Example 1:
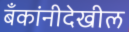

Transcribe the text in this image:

बँकांनीदेखील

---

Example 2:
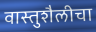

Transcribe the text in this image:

वास्तुशैलीचा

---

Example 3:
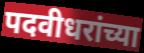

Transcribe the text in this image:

पदवीधरांच्या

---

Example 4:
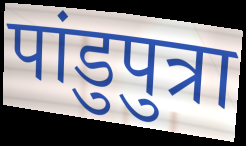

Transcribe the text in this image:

पांडुपुत्रा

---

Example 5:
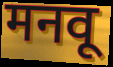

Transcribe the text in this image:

मनवू